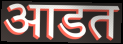
आडत